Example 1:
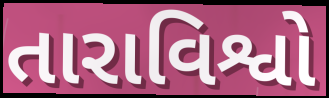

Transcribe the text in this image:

તારાવિશ્વો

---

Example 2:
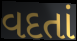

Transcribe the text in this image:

વદતાં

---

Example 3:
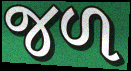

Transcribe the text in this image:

જળ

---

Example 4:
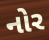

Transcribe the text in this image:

નોર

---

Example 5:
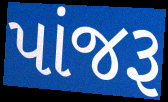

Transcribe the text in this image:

પાંજરૂ